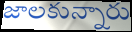
జాలకున్నారు